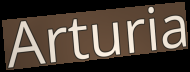
Arturia